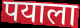
पयाला